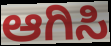
ಆಗಿಸಿ